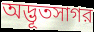
অদ্ভূতসাগর